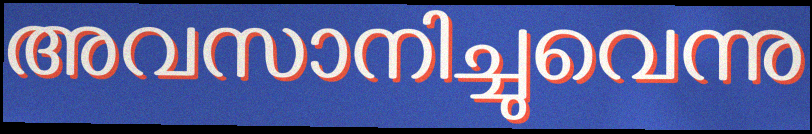
അവസാനിച്ചുവെന്നു